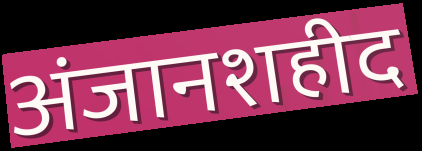
अंजानशहीद